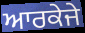
ਆਰਕੇਜੇ